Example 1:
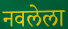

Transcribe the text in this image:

नवलेला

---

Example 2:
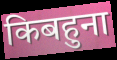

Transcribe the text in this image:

किबहुना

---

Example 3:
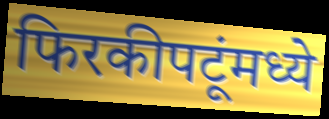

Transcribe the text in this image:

फिरकीपटूंमध्ये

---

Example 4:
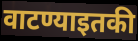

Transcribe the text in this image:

वाटण्याइतकी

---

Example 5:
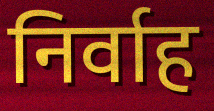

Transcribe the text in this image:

निर्वाह